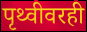
पृथ्वीवरही